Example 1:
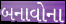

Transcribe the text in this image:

બનાવોના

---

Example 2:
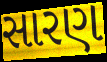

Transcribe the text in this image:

સારણ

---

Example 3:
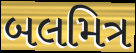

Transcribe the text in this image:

બલમિત્ર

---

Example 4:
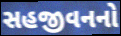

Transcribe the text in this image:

સહજીવનનો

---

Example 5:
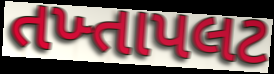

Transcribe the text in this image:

તખ્તાપલટ